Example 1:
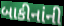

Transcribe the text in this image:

બાકીનાંની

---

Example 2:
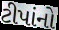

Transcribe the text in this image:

ટીપાંનો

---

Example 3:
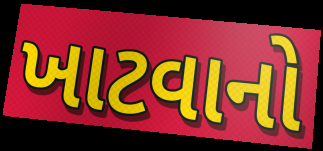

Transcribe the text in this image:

ખાટવાનો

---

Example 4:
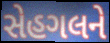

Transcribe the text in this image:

સેહગલને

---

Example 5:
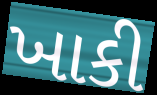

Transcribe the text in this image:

ખાકી